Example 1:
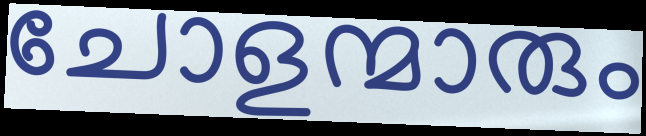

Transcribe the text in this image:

ചോളന്മാരും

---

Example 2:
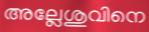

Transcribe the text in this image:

അല്ലേശുവിനെ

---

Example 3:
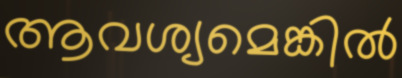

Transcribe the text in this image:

ആവശ്യമെങ്കിൽ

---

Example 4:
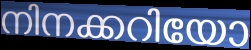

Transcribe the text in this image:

നിനക്കറിയോ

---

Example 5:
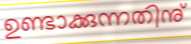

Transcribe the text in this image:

ഉണ്ടാക്കുന്നതിനു്